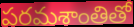
పరమశాంతితో